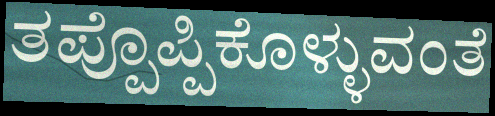
ತಪ್ಪೊಪ್ಪಿಕೊಳ್ಳುವಂತೆ